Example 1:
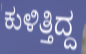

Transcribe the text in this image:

ಕುಳಿತ್ತಿದ್ದ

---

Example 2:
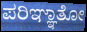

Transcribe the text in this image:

ಪರಿಞ್ಞಾತೋ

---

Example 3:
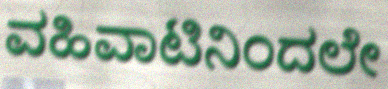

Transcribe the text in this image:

ವಹಿವಾಟಿನಿಂದಲೇ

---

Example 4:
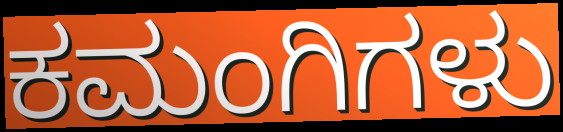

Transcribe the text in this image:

ಕಮಂಗಿಗಳು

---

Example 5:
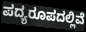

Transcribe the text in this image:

ಪದ್ಯರೂಪದಲ್ಲಿವೆ